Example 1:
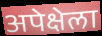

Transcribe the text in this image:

अपेक्षेला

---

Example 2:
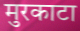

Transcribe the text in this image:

मुरकाटा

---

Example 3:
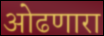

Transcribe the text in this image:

ओढणारा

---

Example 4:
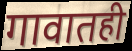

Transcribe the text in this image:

गावातही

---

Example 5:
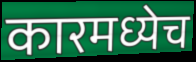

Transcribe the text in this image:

कारमध्येच